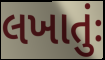
લખાતુંઃ